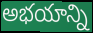
అభయాన్ని